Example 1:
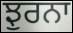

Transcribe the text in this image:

ਝੁਰਨਾ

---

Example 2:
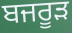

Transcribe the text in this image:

ਬਜਰੂੜ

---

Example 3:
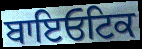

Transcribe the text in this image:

ਬਾਇਓਟਿਕ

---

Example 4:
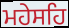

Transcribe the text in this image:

ਮਹੇਸਹਿ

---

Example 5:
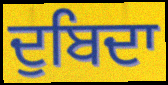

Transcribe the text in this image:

ਦੁਬਿਦਾ